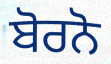
ਬੋਰਨੋ